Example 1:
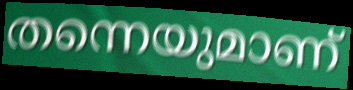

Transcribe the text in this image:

തന്നെയുമാണ്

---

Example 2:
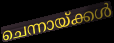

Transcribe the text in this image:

ചെന്നായ്ക്കൾ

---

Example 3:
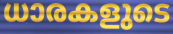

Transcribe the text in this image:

ധാരകളുടെ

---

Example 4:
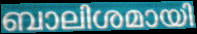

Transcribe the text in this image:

ബാലിശമായി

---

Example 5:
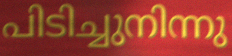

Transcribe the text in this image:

പിടിച്ചുനിന്നു